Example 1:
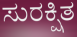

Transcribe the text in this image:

ಸುರಕ್ಷಿತ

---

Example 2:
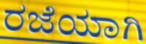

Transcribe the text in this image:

ರಜೆಯಾಗಿ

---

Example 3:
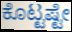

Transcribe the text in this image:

ಕೊಟ್ಟಷ್ಟೇ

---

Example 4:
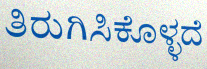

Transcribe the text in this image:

ತಿರುಗಿಸಿಕೊಳ್ಳದೆ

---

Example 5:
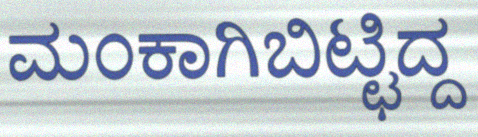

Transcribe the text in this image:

ಮಂಕಾಗಿಬಿಟ್ಟಿದ್ದ